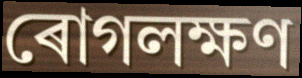
ৰোগলক্ষণ